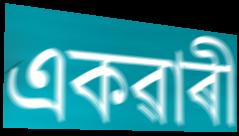
একৱাৰী